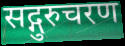
सद्गुरुचरण